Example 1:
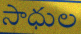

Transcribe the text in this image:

సాధుల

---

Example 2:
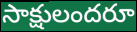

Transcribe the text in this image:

సాక్షులందరూ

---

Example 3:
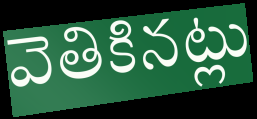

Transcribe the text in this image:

వెతికినట్లు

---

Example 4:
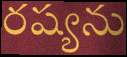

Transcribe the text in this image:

రష్యను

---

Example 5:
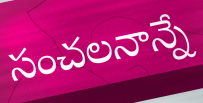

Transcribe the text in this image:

సంచలనాన్నే